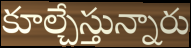
కూల్చేస్తున్నారు